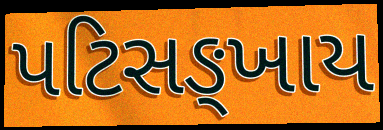
પટિસઙ્ખાય